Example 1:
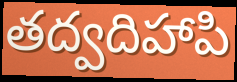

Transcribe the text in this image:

తద్వదిహాపి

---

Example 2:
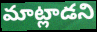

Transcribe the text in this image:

మాట్లాడని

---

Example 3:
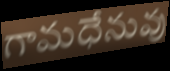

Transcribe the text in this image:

గామధేనువు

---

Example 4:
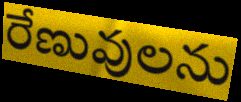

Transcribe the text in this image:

రేణువులను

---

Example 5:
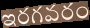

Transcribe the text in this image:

ఇరగవరం